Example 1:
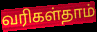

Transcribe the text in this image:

வரிகள்தாம்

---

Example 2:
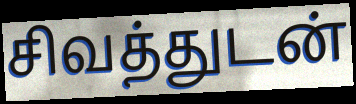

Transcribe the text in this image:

சிவத்துடன்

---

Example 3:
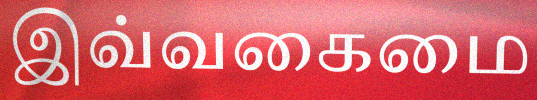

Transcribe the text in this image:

இவ்வகைமை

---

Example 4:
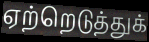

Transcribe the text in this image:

ஏற்றெடுத்துக்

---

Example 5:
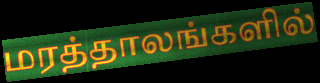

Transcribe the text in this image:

மரத்தாலங்களில்